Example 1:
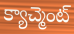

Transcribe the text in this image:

క్యాచ్మెంట్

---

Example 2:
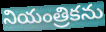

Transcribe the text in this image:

నియంత్రికను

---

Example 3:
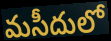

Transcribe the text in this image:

మసీదులో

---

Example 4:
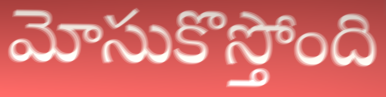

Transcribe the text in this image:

మోసుకొస్తోంది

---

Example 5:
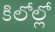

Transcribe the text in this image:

కిలోల్లో